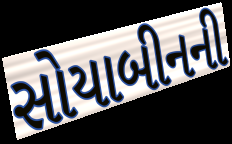
સોયાબીનની